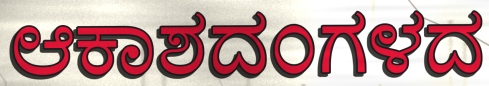
ಆಕಾಶದಂಗಳದ